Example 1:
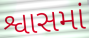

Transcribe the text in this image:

શ્વાસમાં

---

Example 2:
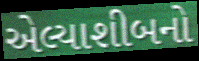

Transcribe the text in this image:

એલ્યાશીબનો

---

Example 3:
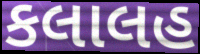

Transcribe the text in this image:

કલાલહ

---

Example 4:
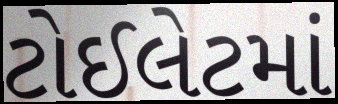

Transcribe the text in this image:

ટોઈલેટમાં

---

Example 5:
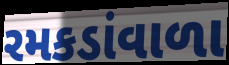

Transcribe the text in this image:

રમકડાંવાળા